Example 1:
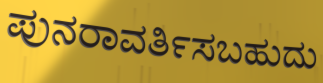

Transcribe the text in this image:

ಪುನರಾವರ್ತಿಸಬಹುದು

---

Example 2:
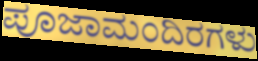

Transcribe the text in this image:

ಪೂಜಾಮಂದಿರಗಳು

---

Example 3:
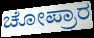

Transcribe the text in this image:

ಚೋಪ್ರಾರ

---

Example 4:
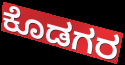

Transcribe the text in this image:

ಕೊಡಗರ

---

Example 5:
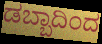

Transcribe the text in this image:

ಡಬ್ಬಾದಿಂದ